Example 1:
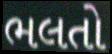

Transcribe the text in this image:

ભલતો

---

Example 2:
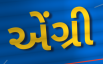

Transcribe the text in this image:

એંગ્રી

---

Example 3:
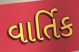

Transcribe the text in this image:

વાર્તિક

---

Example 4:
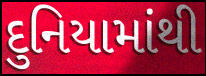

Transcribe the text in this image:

દુનિયામાંથી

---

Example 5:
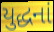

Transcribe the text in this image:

યુદ્ધનાં